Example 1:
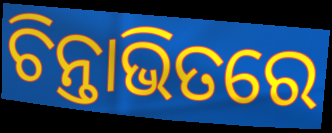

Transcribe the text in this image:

ଚିନ୍ତାଭିତରେ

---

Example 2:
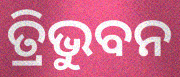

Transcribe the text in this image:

ତ୍ରିଭୁବନ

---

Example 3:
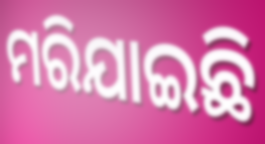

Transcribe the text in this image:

ମରିଯାଇଛି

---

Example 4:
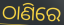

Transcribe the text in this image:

ଠାଣିରେ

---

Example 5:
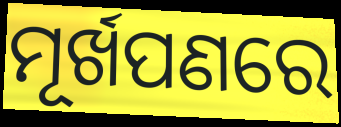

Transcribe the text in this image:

ମୂର୍ଖପଣରେ